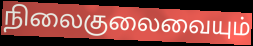
நிலைகுலைவையும்